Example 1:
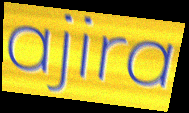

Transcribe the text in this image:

ajira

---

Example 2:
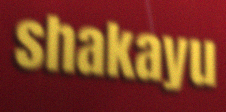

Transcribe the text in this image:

shakayu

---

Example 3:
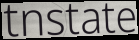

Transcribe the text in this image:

tnstate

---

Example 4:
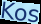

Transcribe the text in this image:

Kos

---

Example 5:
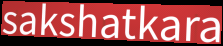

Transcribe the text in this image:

sakshatkara